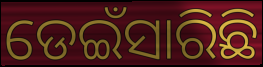
ଡେଇଁସାରିଛି